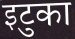
इटुका